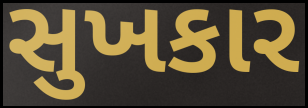
સુખકાર